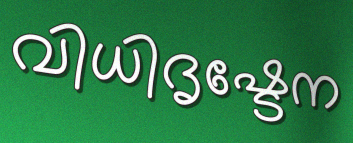
വിധിദൃഷ്ടേന